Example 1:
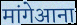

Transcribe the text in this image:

मांगेआना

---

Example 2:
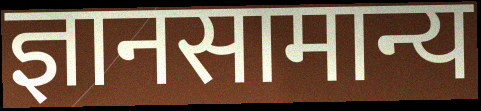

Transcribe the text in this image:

ज्ञानसामान्य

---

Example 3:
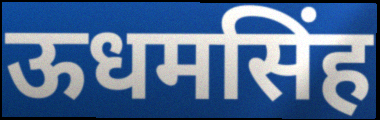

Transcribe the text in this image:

ऊधमसिंह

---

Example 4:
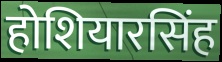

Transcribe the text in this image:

होशियारसिंह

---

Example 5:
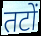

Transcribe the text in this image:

तटों